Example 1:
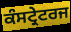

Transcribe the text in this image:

ਕੰਸਟ੍ਰੇਟਰਜ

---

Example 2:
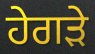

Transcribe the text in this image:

ਹੇਗੜੇ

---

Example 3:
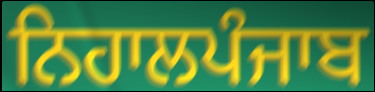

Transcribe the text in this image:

ਨਿਹਾਲਪੰਜਾਬ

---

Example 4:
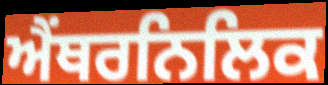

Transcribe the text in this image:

ਐਂਥਰਨਿਲਿਕ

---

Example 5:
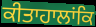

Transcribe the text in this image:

ਕੀਤਾਹਾਲਾਂਕਿ